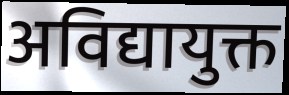
अविद्यायुक्त